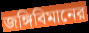
জঙ্গিবিমানের